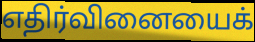
எதிர்வினையைக்